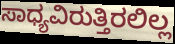
ಸಾಧ್ಯವಿರುತ್ತಿರಲಿಲ್ಲ